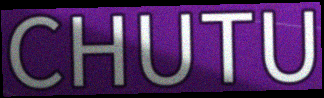
CHUTU